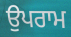
ਉਪਰਾਮ